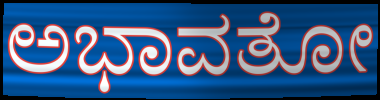
ಅಭಾವತೋ